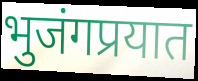
भुजंगप्रयात